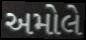
અમોલે